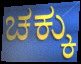
ಚಕ್ಕು